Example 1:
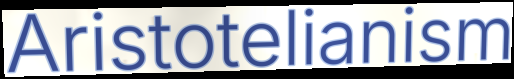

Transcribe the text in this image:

Aristotelianism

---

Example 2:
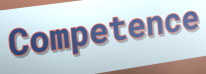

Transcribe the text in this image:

Competence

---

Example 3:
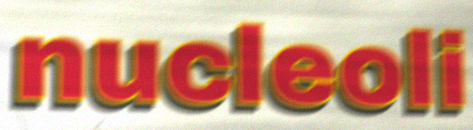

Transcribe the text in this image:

nucleoli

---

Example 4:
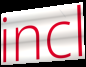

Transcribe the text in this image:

incl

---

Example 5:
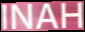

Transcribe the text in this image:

INAH